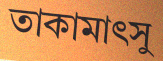
তাকামাৎসু